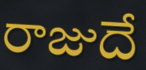
రాజుదే